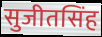
सुजीतसिंह